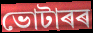
ভোটাৰৰ